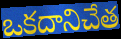
ఒకదానిచేత